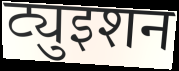
ट्युइशन